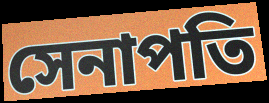
সেনাপতি